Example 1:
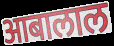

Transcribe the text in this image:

आबालाल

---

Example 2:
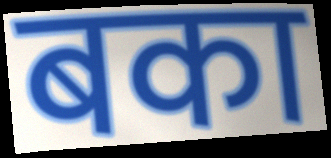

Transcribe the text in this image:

बका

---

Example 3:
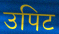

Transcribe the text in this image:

उपिट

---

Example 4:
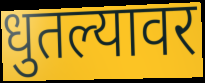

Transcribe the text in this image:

धुतल्यावर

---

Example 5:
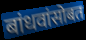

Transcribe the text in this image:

बांधवांसोबत